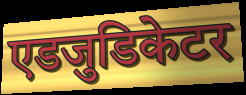
एडजुडिकेटर